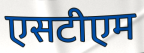
एसटीएम